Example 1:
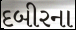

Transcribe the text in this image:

દબીરના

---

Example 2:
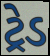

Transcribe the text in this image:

ટ્રેડ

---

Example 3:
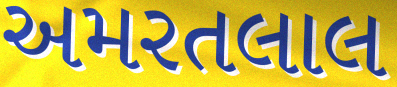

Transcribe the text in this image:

અમરતલાલ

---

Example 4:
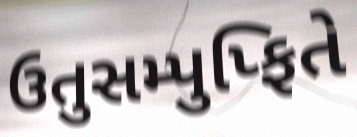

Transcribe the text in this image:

ઉતુસમ્પુપ્ફિતે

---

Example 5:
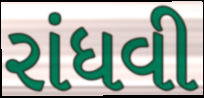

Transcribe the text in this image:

રાંધવી